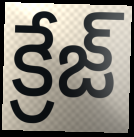
క్రేజ్